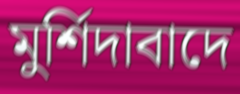
মুর্শিদাবাদে